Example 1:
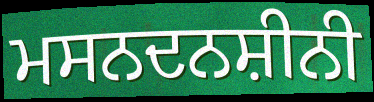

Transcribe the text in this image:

ਮਸਨਦਨਸ਼ੀਨੀ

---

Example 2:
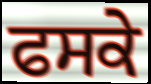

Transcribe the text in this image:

ਫਸਕੇ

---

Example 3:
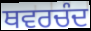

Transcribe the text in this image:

ਥਵਰਚੰਦ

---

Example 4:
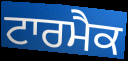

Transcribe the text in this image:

ਟਾਰਮੈਕ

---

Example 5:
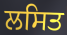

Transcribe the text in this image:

ਲਸਿਤ